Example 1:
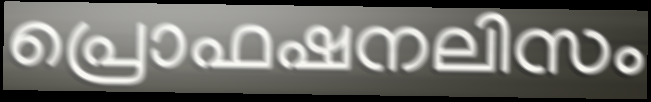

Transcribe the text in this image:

പ്രൊഫഷനലിസം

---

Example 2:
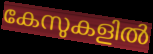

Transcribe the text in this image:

കേസുകളിൽ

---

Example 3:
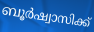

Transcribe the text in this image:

ബൂർഷ്വാസിക്ക്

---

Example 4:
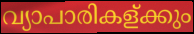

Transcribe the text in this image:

വ്യാപാരികള്ക്കും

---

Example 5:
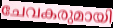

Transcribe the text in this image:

ചേവകരുമായി